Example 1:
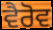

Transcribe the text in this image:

ਵੈਰੋਵ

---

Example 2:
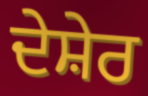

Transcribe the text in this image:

ਦੇਸ਼ੇਰ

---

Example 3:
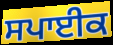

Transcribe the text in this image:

ਸਪਾਈਕ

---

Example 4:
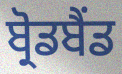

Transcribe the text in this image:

ਬ੍ਰੋਡਬੈਂਡ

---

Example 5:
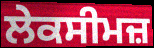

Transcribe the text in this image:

ਲੇਕਸੀਮਜ਼